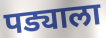
पड्याला